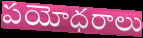
పయోధరాలు